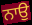
ਨਾਉ